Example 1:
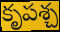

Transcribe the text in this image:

కృపశ్చ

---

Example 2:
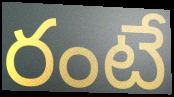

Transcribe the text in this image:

రంటే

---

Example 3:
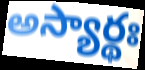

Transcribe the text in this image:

అస్యార్థః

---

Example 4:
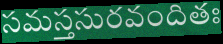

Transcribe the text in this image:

సమస్తసురవందితః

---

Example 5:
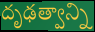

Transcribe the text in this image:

దృఢత్వాన్ని